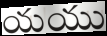
యయు